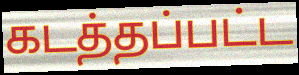
கடத்தப்பட்ட